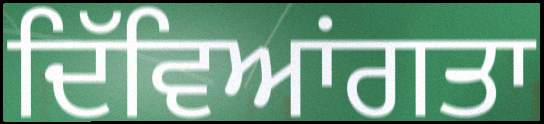
ਦਿੱਵਿਆਂਗਤਾ